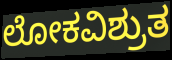
ಲೋಕವಿಶ್ರುತ